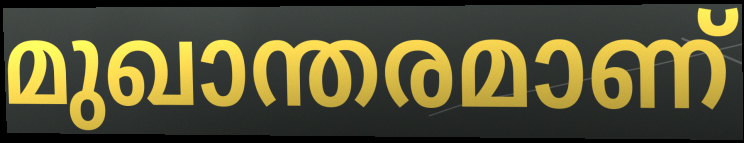
മുഖാന്തരമാണ്